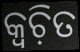
କ୍ୱଚ଼ିତ